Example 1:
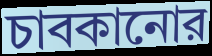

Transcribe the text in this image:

চাবকানোর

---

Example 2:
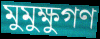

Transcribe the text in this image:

মুমুক্ষুগণ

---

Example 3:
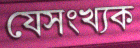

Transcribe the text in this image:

যেসংখ্যক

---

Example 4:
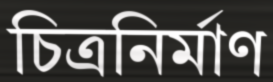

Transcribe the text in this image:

চিত্রনির্মাণ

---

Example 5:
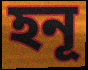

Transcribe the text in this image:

হনূ